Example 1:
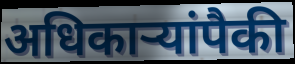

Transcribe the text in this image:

अधिकार्‍यांपैकी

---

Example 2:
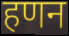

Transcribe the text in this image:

हणन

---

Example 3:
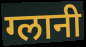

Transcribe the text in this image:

ग्लानी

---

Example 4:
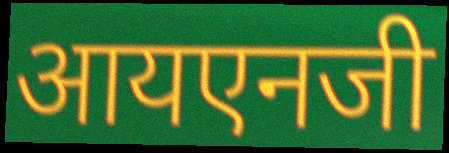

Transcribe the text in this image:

आयएनजी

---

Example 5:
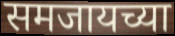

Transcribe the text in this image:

समजायच्या